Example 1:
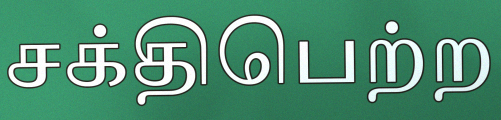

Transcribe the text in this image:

சக்திபெற்ற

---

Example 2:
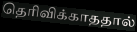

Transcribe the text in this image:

தெரிவிக்காததால்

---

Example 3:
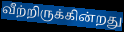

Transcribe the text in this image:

வீற்றிருக்கின்றது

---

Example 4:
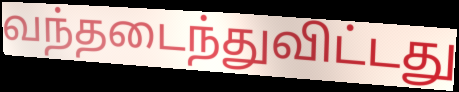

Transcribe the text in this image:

வந்தடைந்துவிட்டது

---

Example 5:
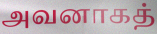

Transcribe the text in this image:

அவனாகத்